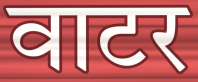
वाटर